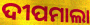
ଦୀପମାଲା